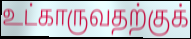
உட்காருவதற்குக்